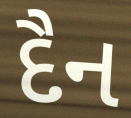
દૈન